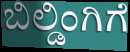
ಬಿಲ್ಡಿಂಗಿಗೆ